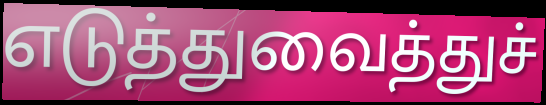
எடுத்துவைத்துச்